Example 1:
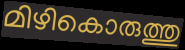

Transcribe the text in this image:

മിഴികൊരുത്തു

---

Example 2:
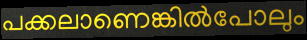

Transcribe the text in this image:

പക്കലാണെങ്കിൽപോലും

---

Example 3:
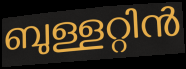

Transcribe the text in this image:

ബുള്ളറ്റിൻ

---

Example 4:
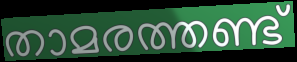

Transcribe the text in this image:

താമരത്തണ്ട്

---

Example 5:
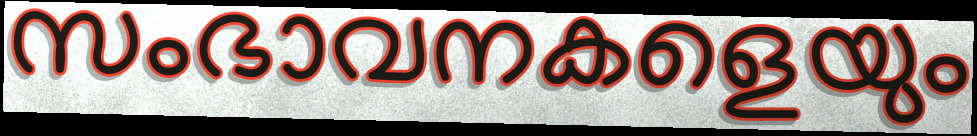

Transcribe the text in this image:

സംഭാവനകളെയും